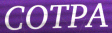
COTPA